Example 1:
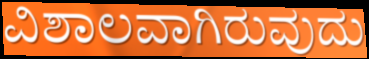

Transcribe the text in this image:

ವಿಶಾಲವಾಗಿರುವುದು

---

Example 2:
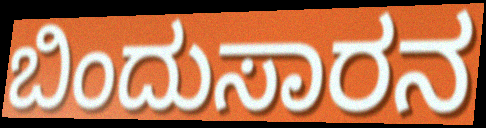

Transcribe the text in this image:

ಬಿಂದುಸಾರನ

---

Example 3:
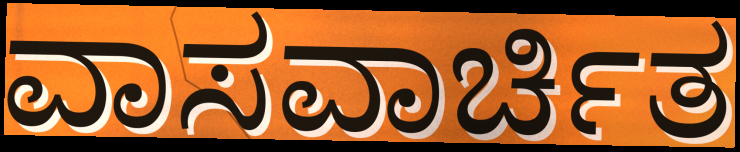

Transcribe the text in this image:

ವಾಸವಾರ್ಚಿತ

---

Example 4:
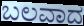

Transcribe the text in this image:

ಬಲವಾದ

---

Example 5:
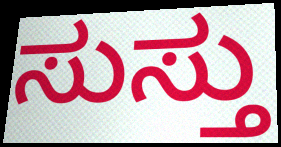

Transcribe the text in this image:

ಸುಸ್ತು